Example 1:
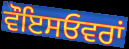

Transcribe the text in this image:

ਵੌਇਸਓਵਰਾਂ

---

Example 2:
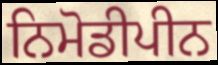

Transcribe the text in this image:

ਨਿਮੋਡੀਪੀਨ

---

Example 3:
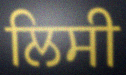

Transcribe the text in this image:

ਲਿਸੀ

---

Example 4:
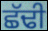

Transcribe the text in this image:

ਛੱਢੀ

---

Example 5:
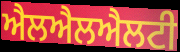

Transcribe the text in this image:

ਐਲਐਲਐਲਟੀ